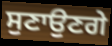
ਸੁਣਾਉਣਗੇ